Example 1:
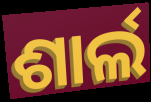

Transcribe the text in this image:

ଶାର୍ଲ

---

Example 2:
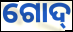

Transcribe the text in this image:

ଗୋଦ୍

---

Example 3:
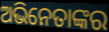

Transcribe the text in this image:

ଅଭିନେତାଙ୍କର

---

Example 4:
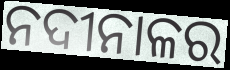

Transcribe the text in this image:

ନଦୀନାଳର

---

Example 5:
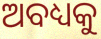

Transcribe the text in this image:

ଅବଧ୍ୟକୁ